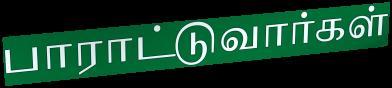
பாராட்டுவார்கள்